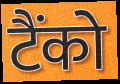
टैंको